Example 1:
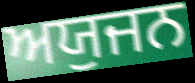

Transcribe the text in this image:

ਅਯੁਜਨ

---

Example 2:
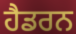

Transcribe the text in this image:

ਹੈਡਰਨ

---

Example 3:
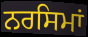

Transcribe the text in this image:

ਨਰਸਿਮਾਂ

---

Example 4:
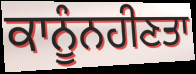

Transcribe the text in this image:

ਕਾਨੂੰਨਹੀਣਤਾ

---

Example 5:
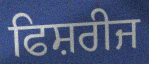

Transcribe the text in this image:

ਫਿਸ਼ਰੀਜ